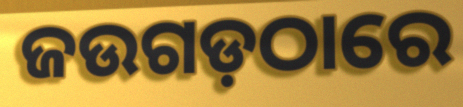
ଜଉଗଡ଼ଠାରେ